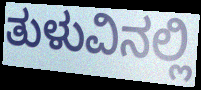
ತುಳುವಿನಲ್ಲಿ